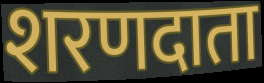
शरणदाता